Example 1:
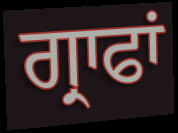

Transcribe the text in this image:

ਗ੍ਰਾਫਾਂ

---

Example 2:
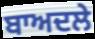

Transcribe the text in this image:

ਬਾਅਦਲੇ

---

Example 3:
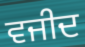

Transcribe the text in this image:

ਵਜੀਦ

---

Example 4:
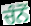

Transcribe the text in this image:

ਚੰਨੋਂ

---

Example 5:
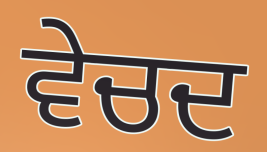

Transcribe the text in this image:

ਵੇਚਦ